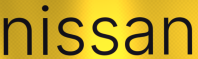
nissan